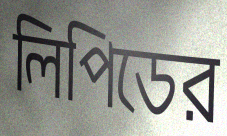
লিপিডের